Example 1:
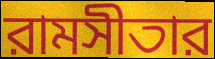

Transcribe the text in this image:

রামসীতার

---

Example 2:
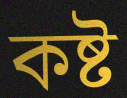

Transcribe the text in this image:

কষ্ট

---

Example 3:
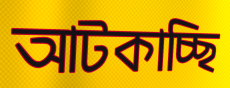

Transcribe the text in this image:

আটকাচ্ছি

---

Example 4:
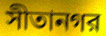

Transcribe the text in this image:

সীতানগর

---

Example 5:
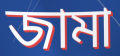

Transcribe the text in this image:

জামা